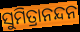
ସୁମିତ୍ରାନନ୍ଦନ